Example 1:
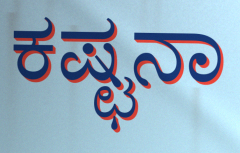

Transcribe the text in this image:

ಕಷ್ಟನಾ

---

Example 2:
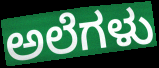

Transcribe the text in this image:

ಅಲೆಗಳು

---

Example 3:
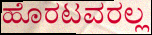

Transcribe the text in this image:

ಹೊರಟವರಲ್ಲ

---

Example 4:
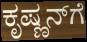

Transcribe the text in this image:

ಕೃಷ್ಣನ್‌ಗೆ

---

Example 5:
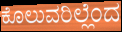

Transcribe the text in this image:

ಕೊಲುವರಿಲ್ಲೆಂದ